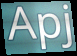
Apj